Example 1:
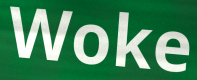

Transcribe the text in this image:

Woke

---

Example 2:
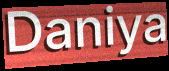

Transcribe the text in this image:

Daniya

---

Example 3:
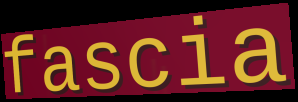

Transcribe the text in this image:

fascia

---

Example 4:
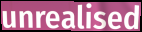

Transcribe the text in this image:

unrealised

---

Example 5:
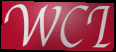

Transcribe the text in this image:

WCI